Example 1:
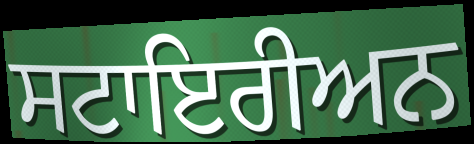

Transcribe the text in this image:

ਸਟਾਇਰੀਅਨ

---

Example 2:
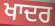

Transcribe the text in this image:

ਖਾਦਰ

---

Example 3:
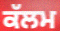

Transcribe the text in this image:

ਕੱਲਮ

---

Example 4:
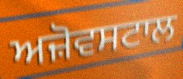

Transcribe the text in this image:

ਅਜ਼ੋਵਸਟਾਲ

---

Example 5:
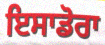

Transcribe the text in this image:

ਇਸਾਡੋਰਾ